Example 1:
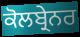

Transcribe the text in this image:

ਕੋਲਬ੍ਰੇਨਰ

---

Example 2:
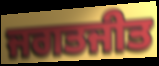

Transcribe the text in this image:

ਜਗਤਜੀਤ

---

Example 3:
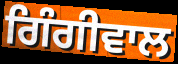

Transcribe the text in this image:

ਗਿੰਗੀਵਾਲ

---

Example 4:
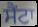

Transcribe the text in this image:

ਸੈਂਟਾ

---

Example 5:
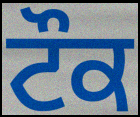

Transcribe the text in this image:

ਟੌਕ